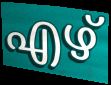
എഴ്